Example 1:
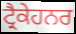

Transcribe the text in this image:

ਟ੍ਰੈਕੇਹਨਰ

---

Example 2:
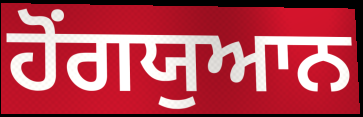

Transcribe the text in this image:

ਹੋਂਗਯੁਆਨ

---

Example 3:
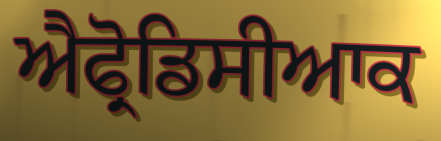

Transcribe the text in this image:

ਐਫ੍ਰੋਡਿਸੀਆਕ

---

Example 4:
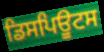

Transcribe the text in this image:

ਡਿਸਪਿਊਟਸ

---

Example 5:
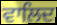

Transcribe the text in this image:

ਵਾਲਿਦ